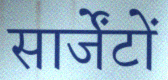
सार्जेंटों